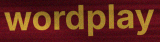
wordplay